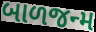
બાળજન્મ